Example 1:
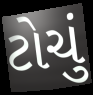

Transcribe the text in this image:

ટોચું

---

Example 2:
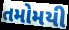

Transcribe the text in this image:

તમોમયી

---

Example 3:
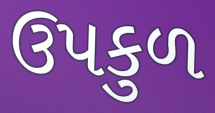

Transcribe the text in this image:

ઉપકુળ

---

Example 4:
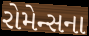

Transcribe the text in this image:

રોમેન્સના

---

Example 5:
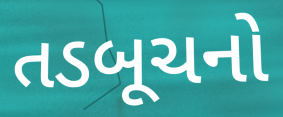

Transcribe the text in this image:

તડબૂચનો